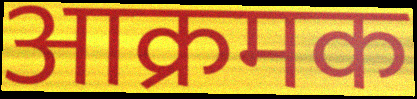
आक्रमक